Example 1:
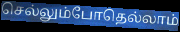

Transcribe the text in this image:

செல்லும்போதெல்லாம்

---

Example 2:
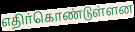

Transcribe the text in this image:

எதிர்கொண்டுள்ளன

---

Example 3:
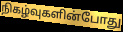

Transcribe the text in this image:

நிகழ்வுகளின்போது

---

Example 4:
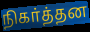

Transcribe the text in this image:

நிகர்த்தன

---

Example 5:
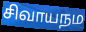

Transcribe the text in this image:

சிவாயநம